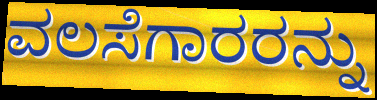
ವಲಸೆಗಾರರನ್ನು